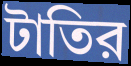
টাতির